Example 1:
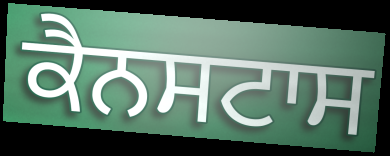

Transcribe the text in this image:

ਕੈਨਸਟਾਸ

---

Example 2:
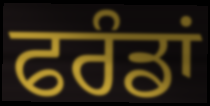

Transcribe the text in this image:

ਫਰੰਡਾਂ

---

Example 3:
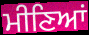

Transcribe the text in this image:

ਮੀਣਿਆਂ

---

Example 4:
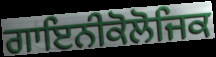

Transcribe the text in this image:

ਗਾਇਨੀਕੋਲੋਜਿਕ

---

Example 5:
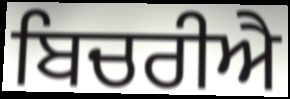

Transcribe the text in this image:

ਬਿਚਰੀਐ